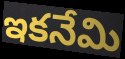
ఇకనేమి